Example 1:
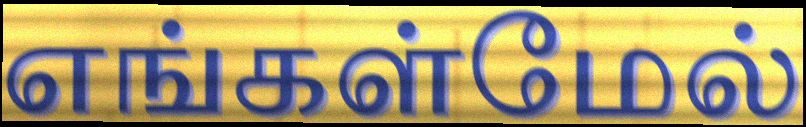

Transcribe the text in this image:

எங்கள்மேல்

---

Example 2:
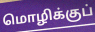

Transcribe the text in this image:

மொழிக்குப்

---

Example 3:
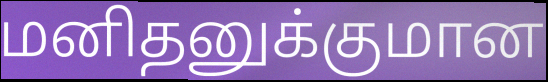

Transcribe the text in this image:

மனிதனுக்குமான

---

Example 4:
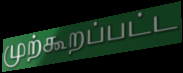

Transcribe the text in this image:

முற்கூறப்பட்ட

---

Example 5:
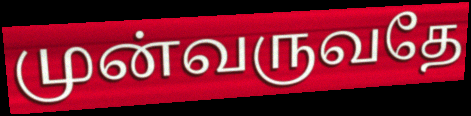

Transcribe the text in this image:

முன்வருவதே